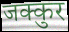
जक्कुर